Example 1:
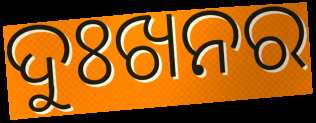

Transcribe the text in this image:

ଦୁଃଖନର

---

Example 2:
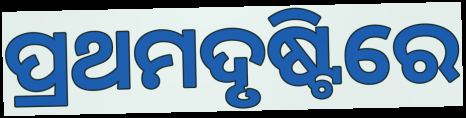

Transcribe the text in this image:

ପ୍ରଥମଦୃଷ୍ଟିରେ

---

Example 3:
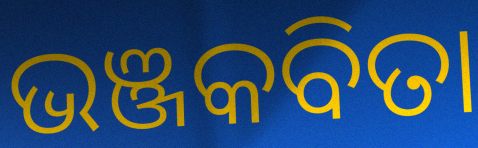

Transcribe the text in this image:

ଭଞ୍ଜକବିତା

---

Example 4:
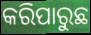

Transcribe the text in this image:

କରିପାରୁଛ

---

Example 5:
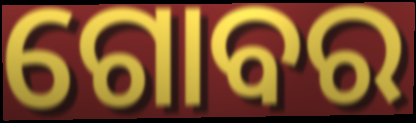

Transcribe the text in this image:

ଗୋବର